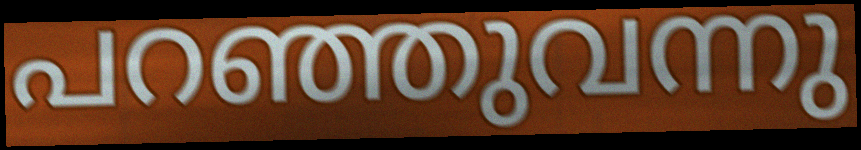
പറഞ്ഞുവന്നു